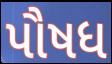
પૌષધ